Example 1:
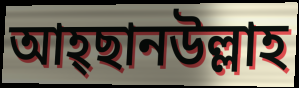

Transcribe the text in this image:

আহ্ছানউল্লাহ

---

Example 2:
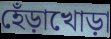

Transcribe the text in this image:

হেঁড়াখোড়া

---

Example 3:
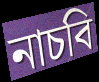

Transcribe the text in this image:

নাচবি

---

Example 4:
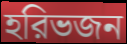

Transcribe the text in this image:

হরিভজন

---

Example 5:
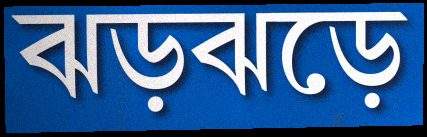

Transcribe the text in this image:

ঝড়ঝড়ে